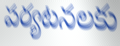
పర్యటనలకు